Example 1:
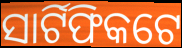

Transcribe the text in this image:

ସାର୍ଟିଫିକଟେ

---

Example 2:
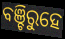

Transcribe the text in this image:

ବଞ୍ଚିରୁହେ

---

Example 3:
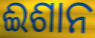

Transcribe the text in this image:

ଈଶାନ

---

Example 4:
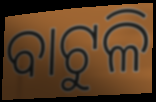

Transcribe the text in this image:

ବାଟୁଳି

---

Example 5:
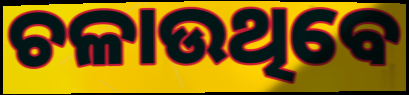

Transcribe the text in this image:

ଚଳାଉଥିବେ